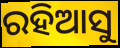
ରହିଆସୁ